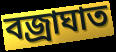
বজ্রাঘাত